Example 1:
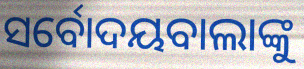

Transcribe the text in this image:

ସର୍ବୋଦୟବାଲାଙ୍କୁ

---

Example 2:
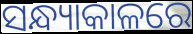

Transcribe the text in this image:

ସନ୍ଧ୍ୟାକାଳରେ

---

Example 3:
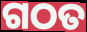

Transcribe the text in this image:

ଗଠତ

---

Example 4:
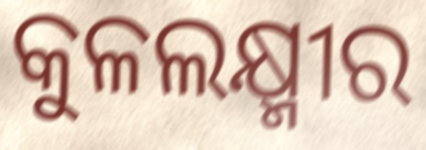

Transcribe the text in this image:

କୁଳଲକ୍ଷ୍ମୀର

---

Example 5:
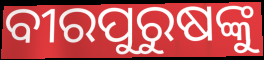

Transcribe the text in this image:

ବୀରପୁରୁଷଙ୍କୁ